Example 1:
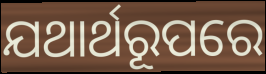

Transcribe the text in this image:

ଯଥାର୍ଥରୂପରେ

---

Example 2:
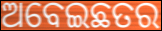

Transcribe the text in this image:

ଅବେଇଛତର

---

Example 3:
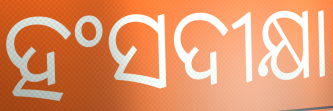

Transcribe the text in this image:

ହଂସଦୀକ୍ଷା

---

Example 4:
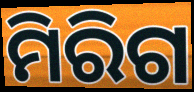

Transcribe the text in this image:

ମିରିଗ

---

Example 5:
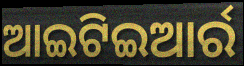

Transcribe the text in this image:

ଆଇଟିଇଆର୍ର